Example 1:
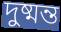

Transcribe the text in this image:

দুষ্মন্ত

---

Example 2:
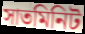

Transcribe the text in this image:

সাতমিনিট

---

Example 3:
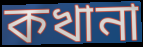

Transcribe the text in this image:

কখানা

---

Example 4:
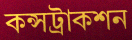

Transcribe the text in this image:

কন্সট্রাকশন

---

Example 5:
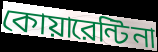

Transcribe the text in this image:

কোয়ারেন্টিনা